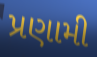
પ્રણામી